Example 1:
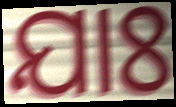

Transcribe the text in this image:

ଯାଃ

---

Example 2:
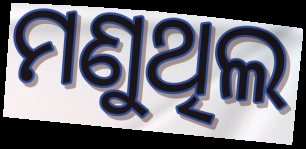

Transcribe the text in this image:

ମଣୁଥିଲ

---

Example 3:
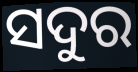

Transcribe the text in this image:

ସଦୁର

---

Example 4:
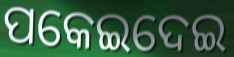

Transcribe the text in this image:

ପକେଇଦେଇ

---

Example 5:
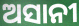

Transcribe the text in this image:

ଅସାନୀ